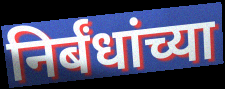
निर्बंधांच्या